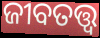
ଜୀବତତ୍ତ୍ୱ